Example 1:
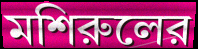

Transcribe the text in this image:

মশিরুলের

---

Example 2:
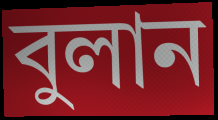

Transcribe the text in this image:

বুলান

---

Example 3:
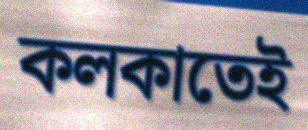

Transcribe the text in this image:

কলকাতেই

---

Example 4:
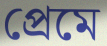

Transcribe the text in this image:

প্রেমে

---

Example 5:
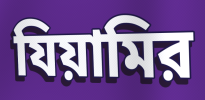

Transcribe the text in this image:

যিয়ামির